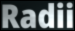
Radii